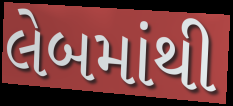
લેબમાંથી